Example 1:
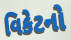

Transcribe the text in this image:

વિકેટનો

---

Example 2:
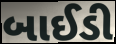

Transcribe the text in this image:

બાઈડી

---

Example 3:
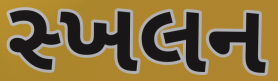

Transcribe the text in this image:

સ્ખલન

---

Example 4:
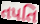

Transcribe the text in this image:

તપતિ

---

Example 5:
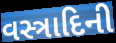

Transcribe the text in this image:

વસ્ત્રાદિની